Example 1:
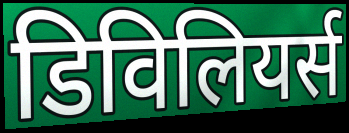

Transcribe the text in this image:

डिविलियर्स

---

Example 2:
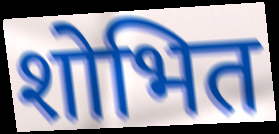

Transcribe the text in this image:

शोभित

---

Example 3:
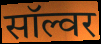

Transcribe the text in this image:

सॉल्वर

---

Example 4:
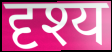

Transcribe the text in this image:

दृश्‍य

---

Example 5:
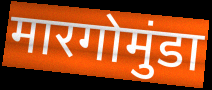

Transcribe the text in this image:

मारगोमुंडा